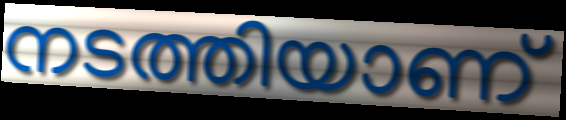
നടത്തിയാണ്